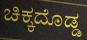
ಚಿಕ್ಕದೊಡ್ಡ